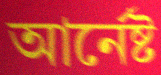
আৰ্নেষ্ট